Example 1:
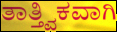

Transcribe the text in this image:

ತಾತ್ತ್ವಿಕವಾಗಿ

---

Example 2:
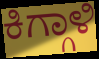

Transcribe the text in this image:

ಕಿಗ್ಗಾಳಿ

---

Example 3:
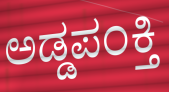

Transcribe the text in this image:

ಅಡ್ಡಪಂಕ್ತಿ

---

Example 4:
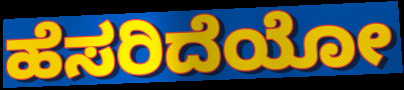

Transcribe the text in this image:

ಹೆಸರಿದೆಯೋ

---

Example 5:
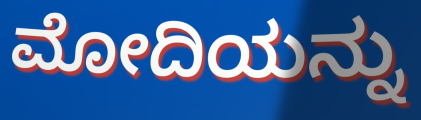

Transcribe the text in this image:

ಮೋದಿಯನ್ನು